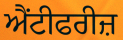
ਐਂਟੀਫਰੀਜ਼